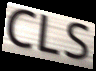
CLS